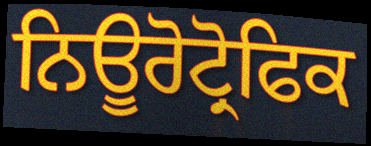
ਨਿਊਰੋਟ੍ਰੋਫਿਕ